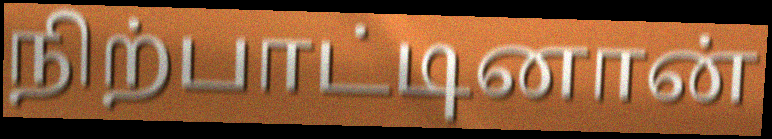
நிற்பாட்டினான்